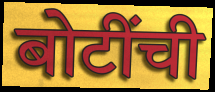
बोटींची